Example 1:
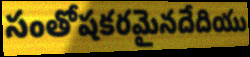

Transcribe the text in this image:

సంతోషకరమైనదేదియు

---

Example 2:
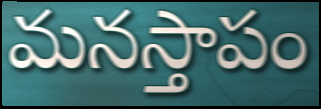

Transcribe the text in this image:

మనస్తాపం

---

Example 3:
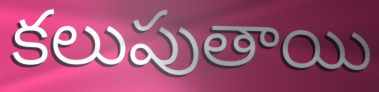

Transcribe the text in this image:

కలుపుతాయి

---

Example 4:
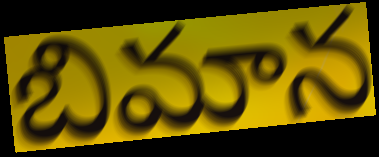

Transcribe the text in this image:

బిమాన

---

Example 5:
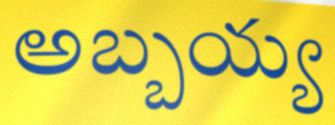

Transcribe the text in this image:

అబ్బయ్య